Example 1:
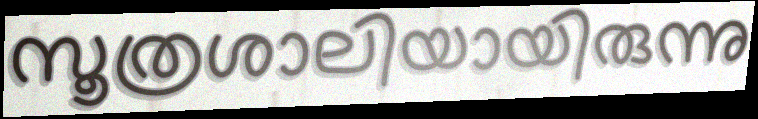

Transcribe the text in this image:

സൂത്രശാലിയായിരുന്നു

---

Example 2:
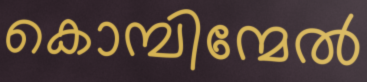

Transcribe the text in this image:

കൊമ്പിന്മേൽ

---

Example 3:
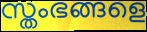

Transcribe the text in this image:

സ്തംഭങ്ങളെ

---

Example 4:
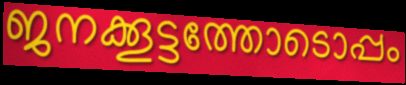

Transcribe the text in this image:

ജനക്കൂട്ടത്തോടൊപ്പം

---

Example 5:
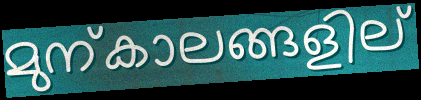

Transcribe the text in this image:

മുന്കാലങ്ങളില്